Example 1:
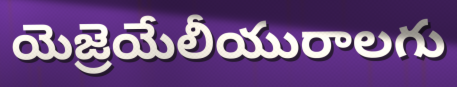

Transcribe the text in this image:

యెజ్రెయేలీయురాలగు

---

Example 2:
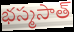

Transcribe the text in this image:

భస్మసాత్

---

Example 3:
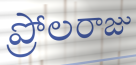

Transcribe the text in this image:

ప్రోలరాజు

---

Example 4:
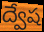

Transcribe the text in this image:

ద్వేష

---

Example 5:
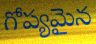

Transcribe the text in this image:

గోప్యమైన